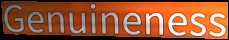
Genuineness